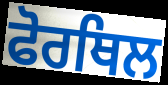
ਫੋਰਥਿਲ